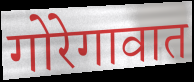
गोरेगावात